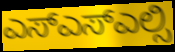
ಎಸ್ಎಸ್ಎಲ್ಸಿ